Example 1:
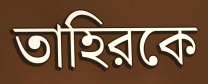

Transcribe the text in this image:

তাহিরকে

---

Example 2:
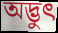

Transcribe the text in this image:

অদ্ভুৎ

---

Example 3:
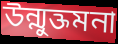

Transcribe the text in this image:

উন্মুক্তমনা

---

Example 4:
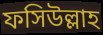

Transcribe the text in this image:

ফসিউল্লাহ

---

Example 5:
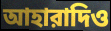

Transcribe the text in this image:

আহারাদিও